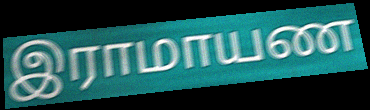
இராமாயண